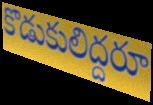
కొడుకులిద్దరూ